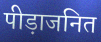
पीड़ाजनित